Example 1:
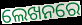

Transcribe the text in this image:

ଲେଖନରେ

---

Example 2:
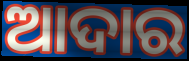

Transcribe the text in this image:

ଆଦାର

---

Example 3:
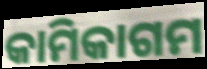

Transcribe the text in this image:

କାମିକାଗମ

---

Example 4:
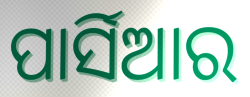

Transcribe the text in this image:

ପାର୍ସିଆର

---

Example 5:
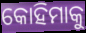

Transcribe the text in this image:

କୋହିମାକୁ